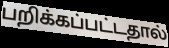
பறிக்கப்பட்டதால்